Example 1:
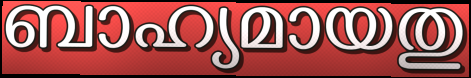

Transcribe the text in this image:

ബാഹ്യമായതു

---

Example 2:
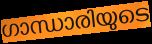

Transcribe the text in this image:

ഗാന്ധാരിയുടെ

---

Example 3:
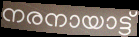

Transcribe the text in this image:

നരനായാട്ട്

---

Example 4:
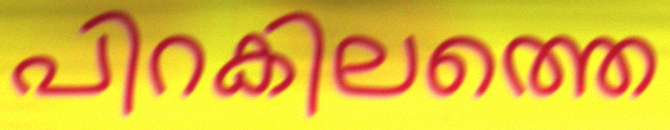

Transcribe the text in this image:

പിറകിലത്തെ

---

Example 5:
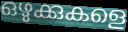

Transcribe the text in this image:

ഒഴുക്കുകളെ